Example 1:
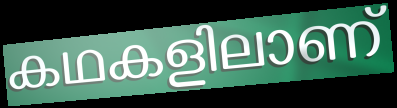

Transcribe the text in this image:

കഥകളിലാണ്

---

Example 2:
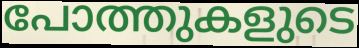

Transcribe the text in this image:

പോത്തുകളുടെ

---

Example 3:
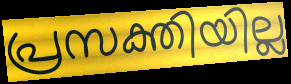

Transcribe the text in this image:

പ്രസക്തിയില്ല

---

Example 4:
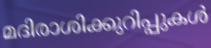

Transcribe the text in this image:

മദിരാശിക്കുറിപ്പുകൾ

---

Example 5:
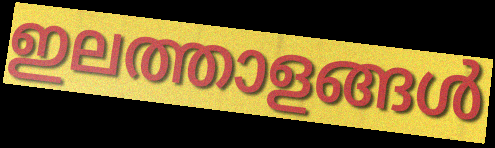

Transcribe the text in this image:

ഇലത്താളങ്ങൾ